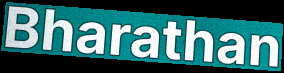
Bharathan